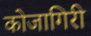
कोजागिरी